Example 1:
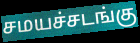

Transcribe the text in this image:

சமயச்சடங்கு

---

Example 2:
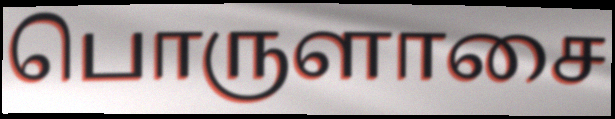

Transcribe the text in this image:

பொருளாசை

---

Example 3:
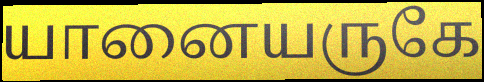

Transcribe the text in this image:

யானையருகே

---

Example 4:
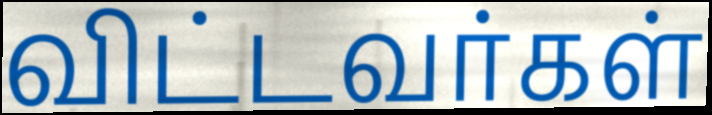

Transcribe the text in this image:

விட்டவர்கள்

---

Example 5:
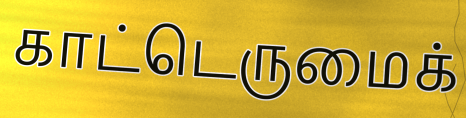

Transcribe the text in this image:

காட்டெருமைக்